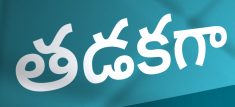
తడకగా